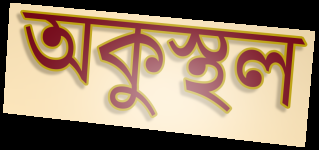
অকুস্থল